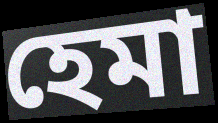
হেমা